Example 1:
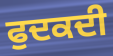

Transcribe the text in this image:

ਫੁਦਕਦੀ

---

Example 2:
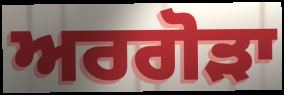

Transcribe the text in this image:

ਅਰਗੋੜਾ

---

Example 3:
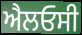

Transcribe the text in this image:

ਐਲਓਸੀ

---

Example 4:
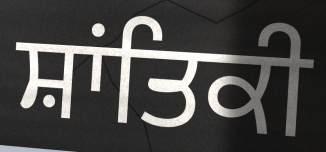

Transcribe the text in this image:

ਸ਼ਾਂਤਿਕੀ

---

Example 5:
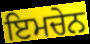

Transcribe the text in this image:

ਇਮਚੇਨ